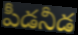
పీడనీడ